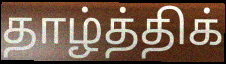
தாழ்த்திக்